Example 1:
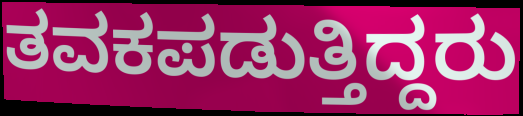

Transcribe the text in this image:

ತವಕಪಡುತ್ತಿದ್ದರು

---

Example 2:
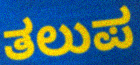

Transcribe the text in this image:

ತಲುಪ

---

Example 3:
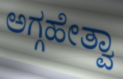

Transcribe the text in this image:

ಅಗ್ಗಹೇತ್ವಾ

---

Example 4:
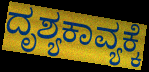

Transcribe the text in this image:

ದೃಶ್ಯಕಾವ್ಯಕ್ಕೆ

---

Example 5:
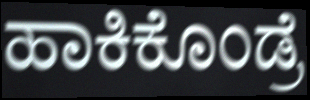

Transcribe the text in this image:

ಹಾಕಿಕೊಂಡ್ರೆ